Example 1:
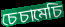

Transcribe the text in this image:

চেচামেচি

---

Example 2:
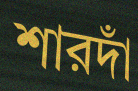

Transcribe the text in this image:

শারদাঁ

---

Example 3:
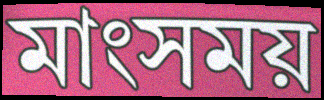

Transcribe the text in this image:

মাংসময়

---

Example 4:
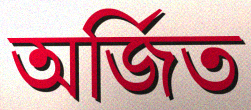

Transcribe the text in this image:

অর্জিত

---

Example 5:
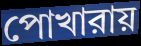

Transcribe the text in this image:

পোখারায়